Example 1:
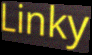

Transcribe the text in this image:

Linky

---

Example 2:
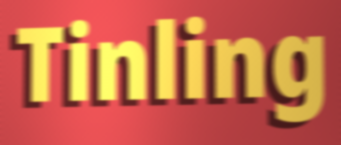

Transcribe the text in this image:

Tinling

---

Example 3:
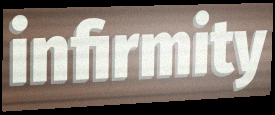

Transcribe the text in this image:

infirmity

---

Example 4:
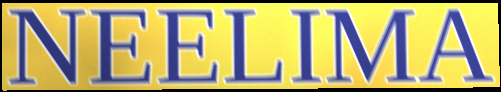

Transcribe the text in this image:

NEELIMA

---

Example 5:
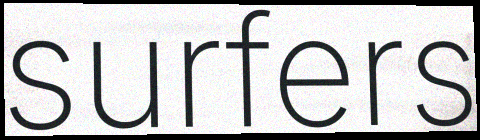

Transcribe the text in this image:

surfers